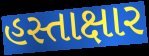
હસ્તાક્ષાર